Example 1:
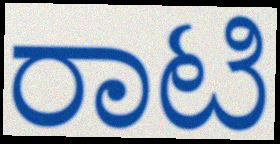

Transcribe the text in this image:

ರಾಟಿ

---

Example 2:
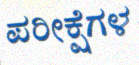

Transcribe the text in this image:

ಪರೀಕ್ಷೆಗಳ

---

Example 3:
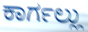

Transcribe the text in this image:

ಕಾರ್ಗಲ್ಲು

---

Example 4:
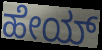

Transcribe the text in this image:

ಹೇಯ್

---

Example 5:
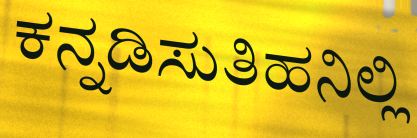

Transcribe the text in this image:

ಕನ್ನಡಿಸುತಿಹನಿಲ್ಲಿ